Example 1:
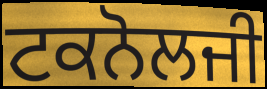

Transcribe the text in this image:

ਟਕਨੋਲਜੀ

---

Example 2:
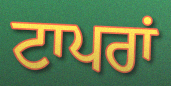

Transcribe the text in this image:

ਟਾਪਰਾਂ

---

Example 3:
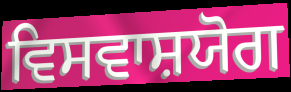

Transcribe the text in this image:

ਵਿਸਵਾਸ਼ਯੋਗ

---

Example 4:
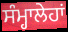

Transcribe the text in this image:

ਸੰਮ੍ਹ੍ਹਾਲੇਹਾਂ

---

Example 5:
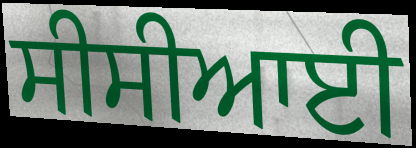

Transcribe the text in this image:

ਸੀਸੀਆਈ